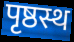
पृष्ठस्थ